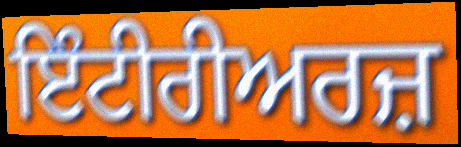
ਇੰਟੀਰੀਅਰਜ਼